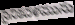
సైనికదళమును